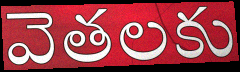
వెతలకు